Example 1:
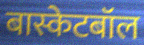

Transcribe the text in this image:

बास्केटबॉल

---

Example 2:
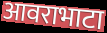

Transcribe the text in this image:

आवराभाटा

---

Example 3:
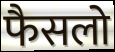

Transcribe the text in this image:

फैसलो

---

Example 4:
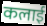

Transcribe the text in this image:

कलाई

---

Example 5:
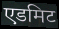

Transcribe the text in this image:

एडमिट